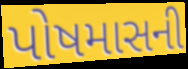
પોષમાસની